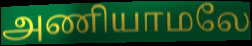
அணியாமலே